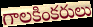
గాలకింకరులు